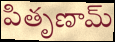
పితృణామ్